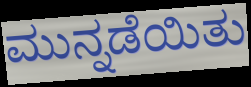
ಮುನ್ನಡೆಯಿತು